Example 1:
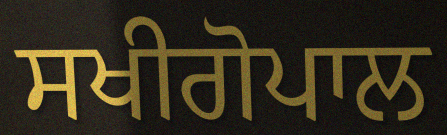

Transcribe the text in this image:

ਸਖੀਗੋਪਾਲ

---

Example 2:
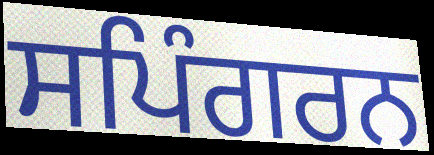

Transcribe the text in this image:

ਸਪਿੰਗਰਨ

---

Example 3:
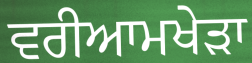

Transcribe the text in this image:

ਵਰੀਆਮਖੇੜਾ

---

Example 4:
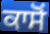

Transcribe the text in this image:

ਕਾਸੋਂ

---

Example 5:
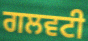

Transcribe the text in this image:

ਗਲਵਟੀ